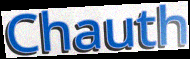
Chauth